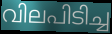
വിലപിടിച്ച